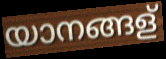
യാനങ്ങള്